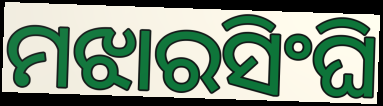
ମଝାରସିଂଘି